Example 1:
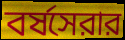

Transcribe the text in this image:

বর্ষসেরার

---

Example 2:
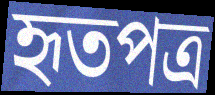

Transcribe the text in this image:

হৃতপত্র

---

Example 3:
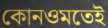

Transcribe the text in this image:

কোনওমতেই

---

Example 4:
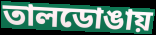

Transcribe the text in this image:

তালডোঙায়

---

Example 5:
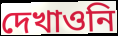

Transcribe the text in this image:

দেখাওনি